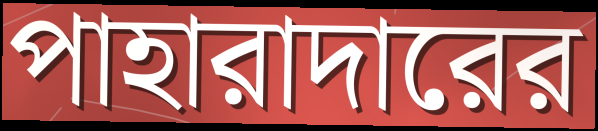
পাহারাদারের